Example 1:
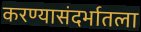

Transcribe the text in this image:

करण्यासंदर्भातला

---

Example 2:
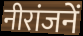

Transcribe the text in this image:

नीरांजनें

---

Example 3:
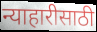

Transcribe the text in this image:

न्याहारीसाठी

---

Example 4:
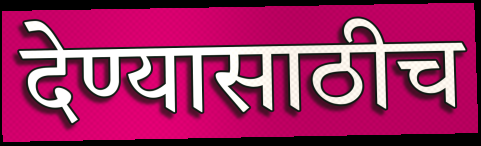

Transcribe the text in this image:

देण्यासाठीच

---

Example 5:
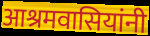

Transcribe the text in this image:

आश्रमवासियांनी